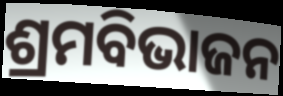
ଶ୍ରମବିଭାଜନ